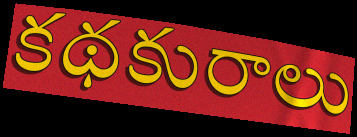
కథకురాలు